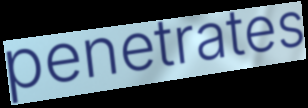
penetrates